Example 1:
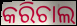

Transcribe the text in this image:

କରିଚାଲ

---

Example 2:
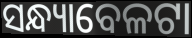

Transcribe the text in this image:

ସନ୍ଧ୍ୟାବେଳଟା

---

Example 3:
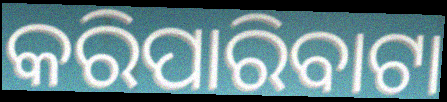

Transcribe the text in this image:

କରିପାରିବାଟା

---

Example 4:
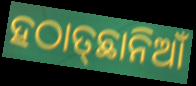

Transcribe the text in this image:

ହଠାତ୍‌ଛାନିଆଁ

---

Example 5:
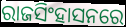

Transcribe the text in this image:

ରାଜସିଂହାସନରେ